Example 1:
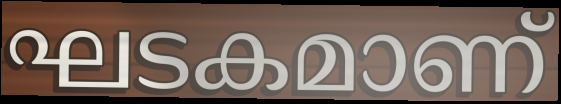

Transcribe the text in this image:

ഘടകമാണ്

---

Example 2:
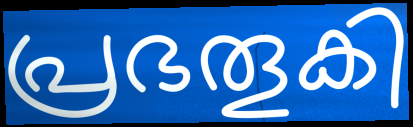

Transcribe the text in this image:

പ്രഭതൂകി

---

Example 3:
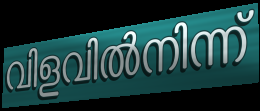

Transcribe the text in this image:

വിളവിൽനിന്ന്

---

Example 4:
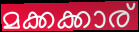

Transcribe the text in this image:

മക്കക്കാര്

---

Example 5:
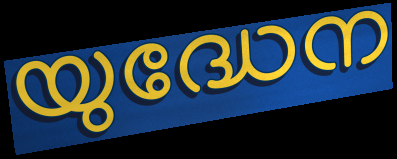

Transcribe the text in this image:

യുദ്ധേന